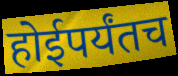
होईपर्यंतच